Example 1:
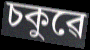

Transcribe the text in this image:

চকুৱে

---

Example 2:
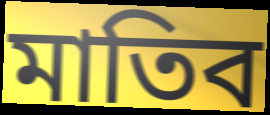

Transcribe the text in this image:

মাতিব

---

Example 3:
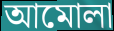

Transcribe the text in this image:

আমোলা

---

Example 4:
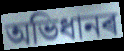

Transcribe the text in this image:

অভিধানৰ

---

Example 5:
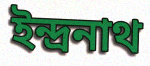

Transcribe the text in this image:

ইন্দ্ৰনাথ